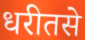
धरीतसे